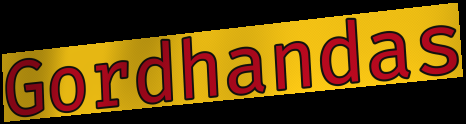
Gordhandas